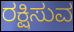
ರಕ್ಷಿಸುವ